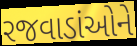
રજવાડાંઓને